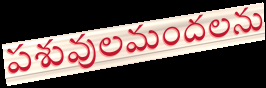
పశువులమందలను